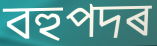
বহুপদৰ